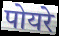
पोयरे